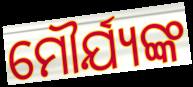
ମୌର୍ଯ୍ୟଙ୍କ